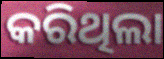
କରିଥିଲା